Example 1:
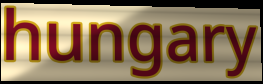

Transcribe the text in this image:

hungary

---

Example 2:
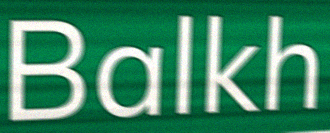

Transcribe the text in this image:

Balkh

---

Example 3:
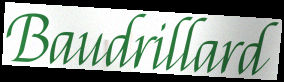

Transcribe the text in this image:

Baudrillard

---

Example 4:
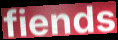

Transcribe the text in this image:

fiends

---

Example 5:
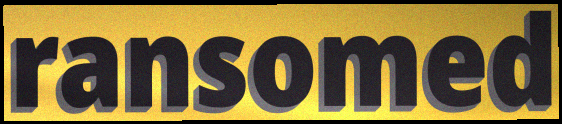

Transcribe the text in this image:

ransomed